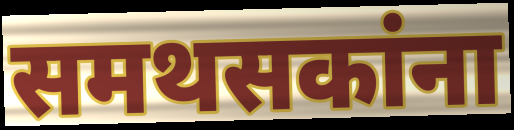
समथसकांना